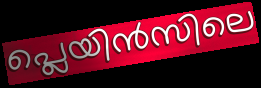
പ്ലെയിൻസിലെ